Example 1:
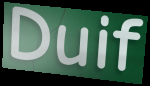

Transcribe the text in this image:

Duif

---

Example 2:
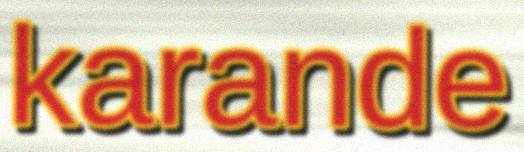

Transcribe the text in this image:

karande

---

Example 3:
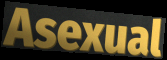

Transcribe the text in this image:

Asexual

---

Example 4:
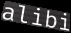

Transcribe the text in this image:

alibi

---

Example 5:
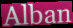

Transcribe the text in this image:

Alban